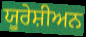
ਯੂਰੇਸ਼ੀਅਨ